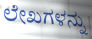
ಲೇಖಗಳನ್ನು